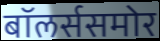
बॉलर्ससमोर